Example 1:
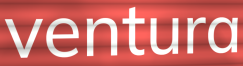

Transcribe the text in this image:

ventura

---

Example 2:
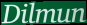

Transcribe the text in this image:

Dilmun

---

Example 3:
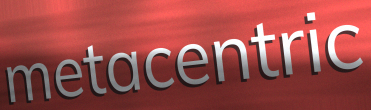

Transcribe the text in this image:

metacentric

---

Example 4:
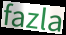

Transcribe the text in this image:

fazla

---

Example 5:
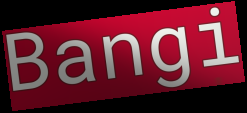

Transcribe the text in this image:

Bangi